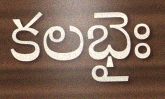
కలభైః